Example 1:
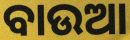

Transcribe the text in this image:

ବାଉଆ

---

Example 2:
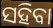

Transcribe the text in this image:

ସହିବା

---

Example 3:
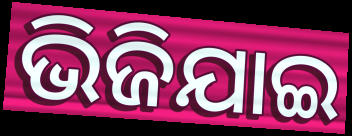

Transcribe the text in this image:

ଭିଜିଯାଇ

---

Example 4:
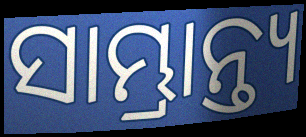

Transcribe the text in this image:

ସାମ୍ଭ୍ରାନ୍ତ୍ୟ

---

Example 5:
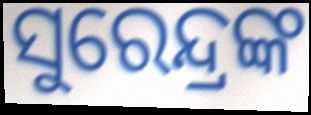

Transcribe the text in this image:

ସୁରେନ୍ଦ୍ରଙ୍କ